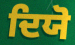
ਦਿਯੋ